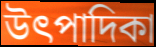
উৎপাদিকা